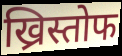
ख्रिस्तोफ